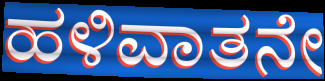
ಹಳಿವಾತನೇ